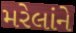
મરેલાંને